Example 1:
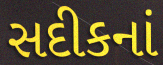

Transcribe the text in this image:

સદીકનાં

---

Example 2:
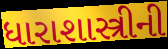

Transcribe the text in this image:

ધારાશાસ્ત્રીની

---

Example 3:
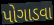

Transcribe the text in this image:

પોગાડવા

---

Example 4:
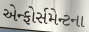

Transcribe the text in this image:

એન્ફોર્સમેન્ટના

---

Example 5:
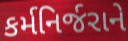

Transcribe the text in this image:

કર્મનિર્જરાને